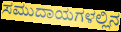
ಸಮುದಾಯಗಳಲ್ಲಿನ